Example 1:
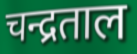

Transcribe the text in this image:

चन्द्रताल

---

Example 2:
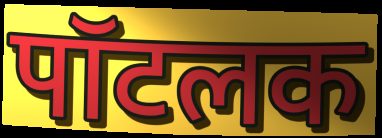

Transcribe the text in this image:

पॉटलक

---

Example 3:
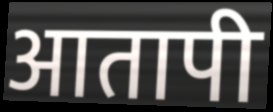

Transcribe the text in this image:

आतापी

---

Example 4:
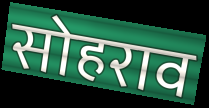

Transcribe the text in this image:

सोहराव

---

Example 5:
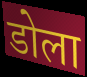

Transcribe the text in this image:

डोला